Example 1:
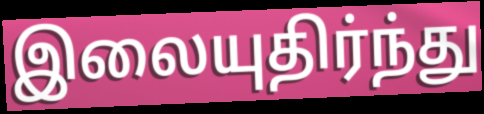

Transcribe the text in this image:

இலையுதிர்ந்து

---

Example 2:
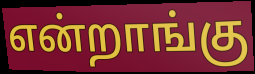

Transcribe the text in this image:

என்றாங்கு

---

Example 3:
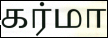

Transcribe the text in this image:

கர்மா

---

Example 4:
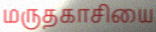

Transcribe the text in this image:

மருதகாசியை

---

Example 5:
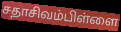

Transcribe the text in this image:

சதாசிவம்பிள்ளை